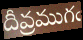
దీవ్రముగఁ